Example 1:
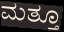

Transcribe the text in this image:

ಮತ್ತೂ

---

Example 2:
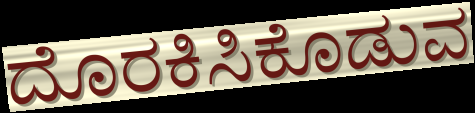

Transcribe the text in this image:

ದೊರಕಿಸಿಕೊಡುವ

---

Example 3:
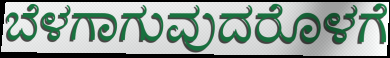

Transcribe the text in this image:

ಬೆಳಗಾಗುವುದರೊಳಗೆ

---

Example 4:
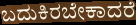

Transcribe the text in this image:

ಬದುಕಿರಬೇಕಾದರೆ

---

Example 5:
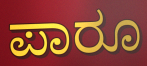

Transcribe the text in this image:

ಪಾರೂ